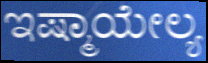
ಇಷ್ಮಾಯೇಲ್ಯ